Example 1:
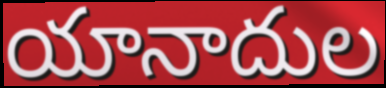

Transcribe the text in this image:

యానాదుల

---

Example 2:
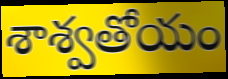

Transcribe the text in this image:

శాశ్వతోయం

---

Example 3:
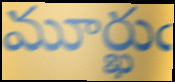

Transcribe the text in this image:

మూర్ఖుఁ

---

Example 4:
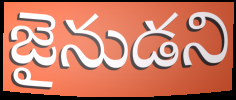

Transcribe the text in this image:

జైనుడని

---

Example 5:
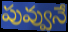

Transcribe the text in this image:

పువ్వునే